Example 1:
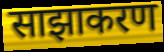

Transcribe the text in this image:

साझाकरण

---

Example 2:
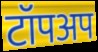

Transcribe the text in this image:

टॉपअप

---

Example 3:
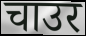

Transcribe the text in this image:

चाउर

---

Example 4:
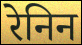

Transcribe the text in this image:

रेनिन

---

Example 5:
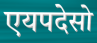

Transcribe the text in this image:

एयपदेसो